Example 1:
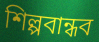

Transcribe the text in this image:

শিল্পবান্ধব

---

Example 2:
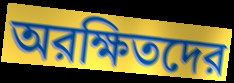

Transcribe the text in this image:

অরক্ষিতদের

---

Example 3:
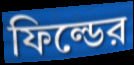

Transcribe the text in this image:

ফিল্ডের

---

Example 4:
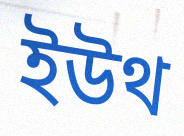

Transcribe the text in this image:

ইউথ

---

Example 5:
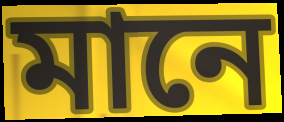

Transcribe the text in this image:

মানে